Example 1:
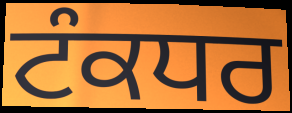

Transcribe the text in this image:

ਟੰਕਧਰ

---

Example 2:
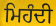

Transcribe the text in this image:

ਮਿਹੰਦੀ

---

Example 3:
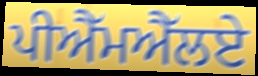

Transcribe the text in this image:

ਪੀਐੱਮਐੱਲਏ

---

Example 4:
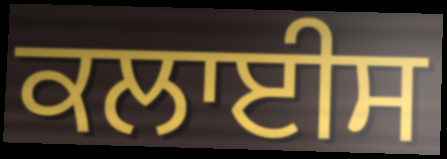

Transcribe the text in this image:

ਕਲਾਈਸ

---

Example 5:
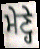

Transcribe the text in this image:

ਮੇਣ੍ਹੇ